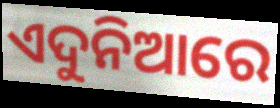
ଏଦୁନିଆରେ